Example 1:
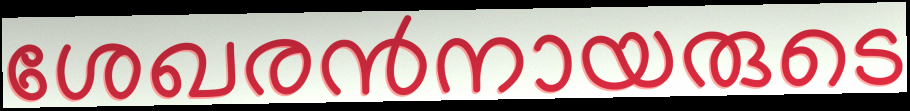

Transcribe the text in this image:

ശേഖരൻനായരുടെ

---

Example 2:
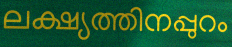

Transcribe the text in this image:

ലക്ഷ്യത്തിനപ്പുറം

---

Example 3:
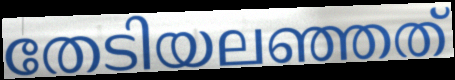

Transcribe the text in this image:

തേടിയലഞ്ഞത്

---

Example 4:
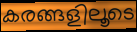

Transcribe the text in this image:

കരങ്ങളിലൂടെ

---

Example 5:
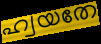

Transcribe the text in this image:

ഹ്വയതേ